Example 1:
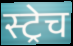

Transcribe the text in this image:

स्ट्रेच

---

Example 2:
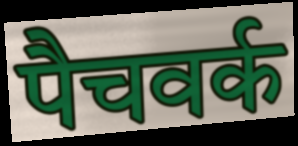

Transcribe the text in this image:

पैचवर्क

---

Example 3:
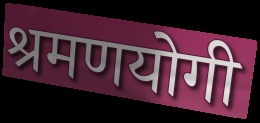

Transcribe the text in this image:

श्रमणयोगी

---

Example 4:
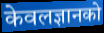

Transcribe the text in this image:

केवलज्ञानको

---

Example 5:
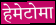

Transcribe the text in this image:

हेमेटोमा